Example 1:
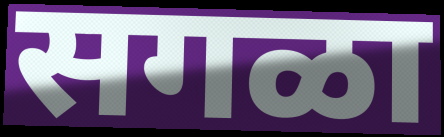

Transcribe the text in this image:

सगळा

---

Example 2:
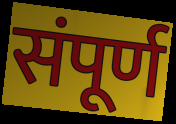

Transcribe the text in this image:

संपूर्ण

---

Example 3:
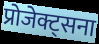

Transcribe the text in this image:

प्रोजेक्ट्सना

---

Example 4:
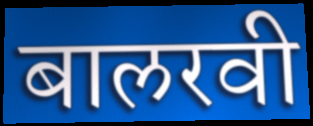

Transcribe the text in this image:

बालरवी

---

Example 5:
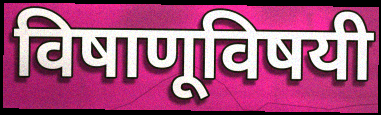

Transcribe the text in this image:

विषाणूविषयी